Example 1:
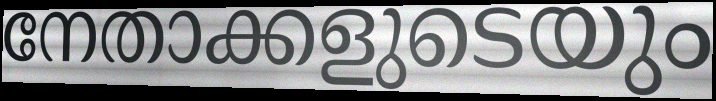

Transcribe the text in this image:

നേതാക്കളുടെയും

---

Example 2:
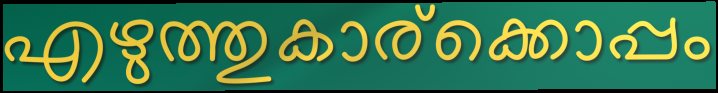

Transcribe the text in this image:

എഴുത്തുകാര്ക്കൊപ്പം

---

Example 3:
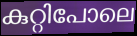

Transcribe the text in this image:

കുറ്റിപോലെ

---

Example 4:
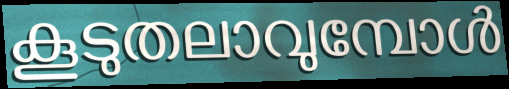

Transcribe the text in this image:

കൂടുതലാവുമ്പോൾ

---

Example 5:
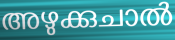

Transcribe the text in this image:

അഴുക്കുചാൽ